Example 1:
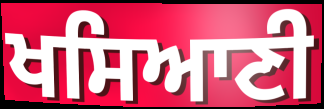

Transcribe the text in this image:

ਖਸਿਆਣੀ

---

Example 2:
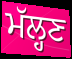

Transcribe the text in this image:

ਮੱਲ੍ਹਣ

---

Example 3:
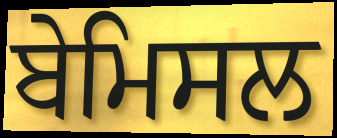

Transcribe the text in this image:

ਬੇਮਿਸਲ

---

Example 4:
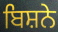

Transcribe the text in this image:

ਬਿਸ਼ਨੇ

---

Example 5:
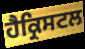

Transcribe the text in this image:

ਹੈਕ੍ਰਿਸਟਲ